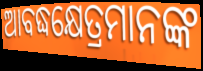
ଆବଦ୍ଧକ୍ଷେତ୍ରମାନଙ୍କ